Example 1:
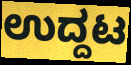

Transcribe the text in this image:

ಉದ್ದಟ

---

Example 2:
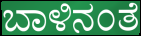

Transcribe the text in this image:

ಬಾಳಿನಂತೆ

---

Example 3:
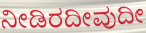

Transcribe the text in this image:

ನೀಡಿರದೀವುದೀ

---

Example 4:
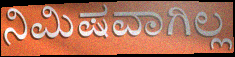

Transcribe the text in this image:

ನಿಮಿಷವಾಗಿಲ್ಲ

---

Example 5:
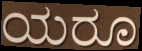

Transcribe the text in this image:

ಯರೂ